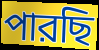
পারছি